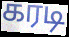
கரடி